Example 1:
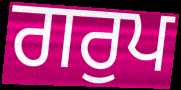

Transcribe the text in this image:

ਗਰੁਪ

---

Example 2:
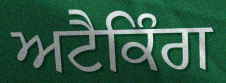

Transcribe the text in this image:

ਅਟੈਕਿੰਗ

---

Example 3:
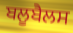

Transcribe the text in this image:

ਬਲੂਬੈਲਸ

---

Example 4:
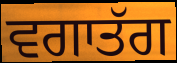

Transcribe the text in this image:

ਵਗਾਤੱਗ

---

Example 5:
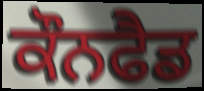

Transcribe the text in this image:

ਕੌਨਫੈਡ